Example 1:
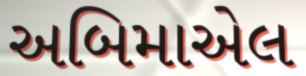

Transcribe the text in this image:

અબિમાએલ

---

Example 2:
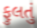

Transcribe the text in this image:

ફુલતું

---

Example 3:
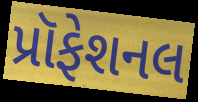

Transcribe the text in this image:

પ્રૉફેશનલ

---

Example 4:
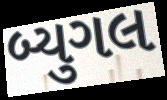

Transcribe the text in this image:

બ્યુગલ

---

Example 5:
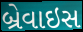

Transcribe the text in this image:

બ્રેવાઇસ